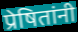
प्रेषितांनी